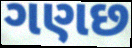
ગણછ